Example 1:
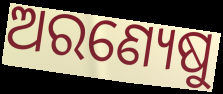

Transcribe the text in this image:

ଅରଣ୍ୟେଷୁ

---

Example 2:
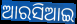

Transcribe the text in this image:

ଆରସିଆଇ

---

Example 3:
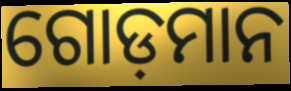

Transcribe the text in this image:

ଗୋଡ଼ମାନ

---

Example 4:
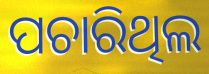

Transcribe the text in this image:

ପଚାରିଥିଲ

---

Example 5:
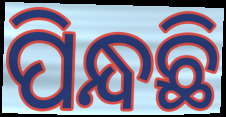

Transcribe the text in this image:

ପିନ୍ଧଛି